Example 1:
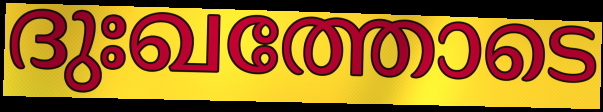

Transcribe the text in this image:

ദുഃഖത്തോടെ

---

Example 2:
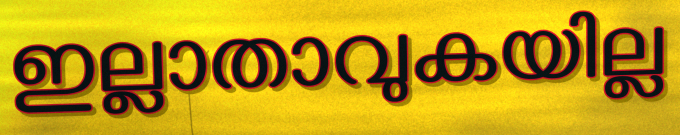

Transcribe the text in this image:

ഇല്ലാതാവുകയില്ല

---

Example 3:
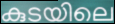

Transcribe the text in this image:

കുടയിലെ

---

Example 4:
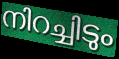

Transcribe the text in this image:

നിറച്ചിടും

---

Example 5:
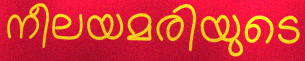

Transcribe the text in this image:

നീലയമരിയുടെ